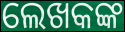
ଲେଖକଙ୍କ